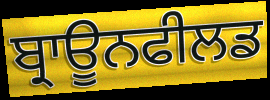
ਬ੍ਰਾਊਨਫੀਲਡ